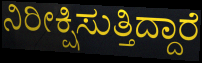
ನಿರೀಕ್ಷಿಸುತ್ತಿದ್ದಾರೆ